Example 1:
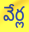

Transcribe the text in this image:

వేర్ల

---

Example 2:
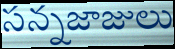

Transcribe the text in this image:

సన్నజాజులు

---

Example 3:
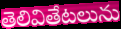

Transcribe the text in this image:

తెలివితేటలును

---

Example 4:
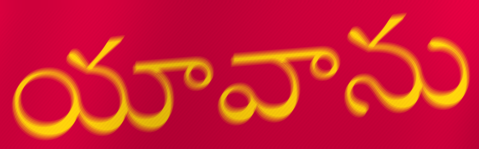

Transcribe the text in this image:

యావాను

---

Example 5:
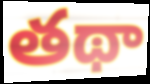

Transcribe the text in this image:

తథా